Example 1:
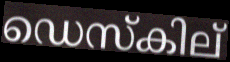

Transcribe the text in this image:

ഡെസ്കില്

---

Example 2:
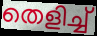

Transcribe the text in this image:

തെളിച്ച്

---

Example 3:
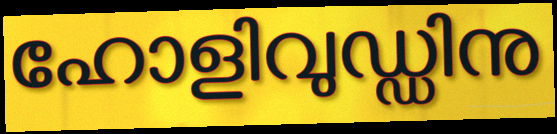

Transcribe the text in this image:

ഹോളിവുഡ്ഡിനു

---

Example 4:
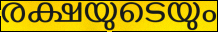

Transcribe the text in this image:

രക്ഷയുടെയും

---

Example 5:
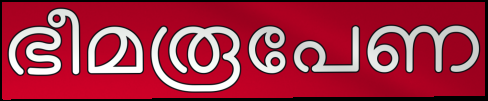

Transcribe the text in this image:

ഭീമരൂപേണ